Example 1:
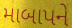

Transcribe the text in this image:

માબાપને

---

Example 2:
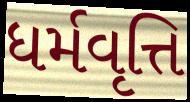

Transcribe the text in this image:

ધર્મવૃત્તિ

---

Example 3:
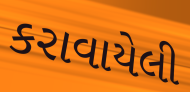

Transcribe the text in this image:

કરાવાયેલી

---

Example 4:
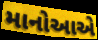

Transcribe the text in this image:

માનોઆએ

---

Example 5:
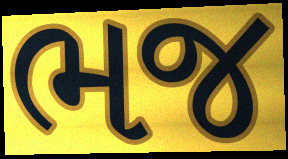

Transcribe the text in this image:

ભજ